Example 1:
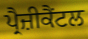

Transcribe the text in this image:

ਪ੍ਰੈਜ਼ੀਕੈਂਟਲ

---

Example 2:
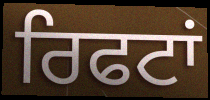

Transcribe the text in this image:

ਰਿਫਟਾਂ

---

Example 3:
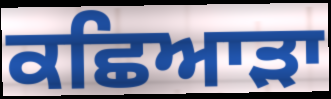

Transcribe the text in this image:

ਕਛਿਆੜਾ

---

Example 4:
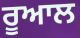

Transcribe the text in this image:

ਰੂਆਲ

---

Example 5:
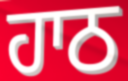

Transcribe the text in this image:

ਹਾਠ